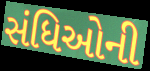
સંધિઓની